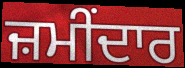
ਜ਼ਮੀਂਦਾਰ